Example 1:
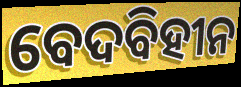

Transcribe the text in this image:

ବେଦବିହୀନ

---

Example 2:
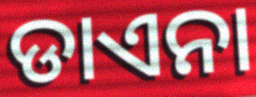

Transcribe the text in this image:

ଡାଏନା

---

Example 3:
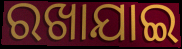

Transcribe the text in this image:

ରଖାଯାଇ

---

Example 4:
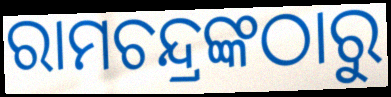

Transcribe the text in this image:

ରାମଚନ୍ଦ୍ରଙ୍କଠାରୁ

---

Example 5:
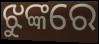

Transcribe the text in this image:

ଝୁଙ୍କରେ